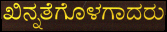
ಖಿನ್ನತೆಗೊಳಗಾದರು